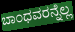
ಬಾಂಧವರನ್ನೆಲ್ಲ